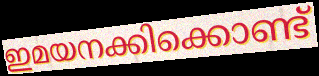
ഇമയനക്കിക്കൊണ്ട്